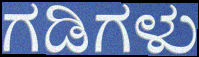
ಗಡಿಗಳು